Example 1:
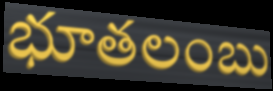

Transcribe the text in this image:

భూతలంబు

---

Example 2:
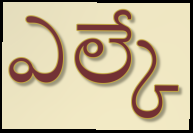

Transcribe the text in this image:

ఎల్కే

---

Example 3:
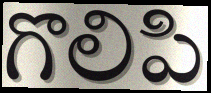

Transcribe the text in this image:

గొలిపి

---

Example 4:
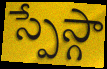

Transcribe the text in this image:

స్పేస్గా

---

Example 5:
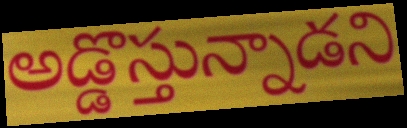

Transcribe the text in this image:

అడ్డొస్తున్నాడని